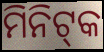
ମିନିଟ୍‍କ